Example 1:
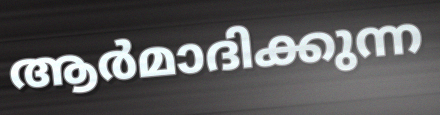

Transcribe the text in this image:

ആർമാദിക്കുന്ന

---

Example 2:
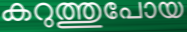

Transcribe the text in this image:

കറുത്തുപോയ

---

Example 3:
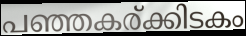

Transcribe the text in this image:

പഞ്ഞകര്ക്കിടകം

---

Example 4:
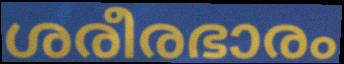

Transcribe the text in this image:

ശരീരഭാരം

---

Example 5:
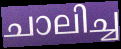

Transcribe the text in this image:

ചാലിച്ച